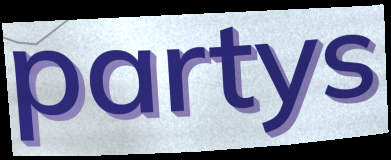
partys